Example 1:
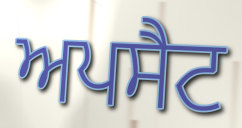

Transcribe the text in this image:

ਅਪਸੈਟ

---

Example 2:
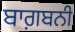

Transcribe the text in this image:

ਬਾਗ਼ਬਨੀ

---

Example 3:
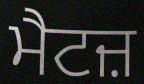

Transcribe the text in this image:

ਮੈਟਜ਼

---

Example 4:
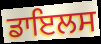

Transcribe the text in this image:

ਡਾਇਲਸ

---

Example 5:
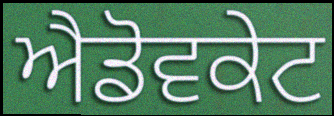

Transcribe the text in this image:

ਐਡੋਵਕੇਟ